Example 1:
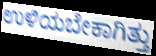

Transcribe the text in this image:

ಉಳಿಯಬೇಕಾಗಿತ್ತು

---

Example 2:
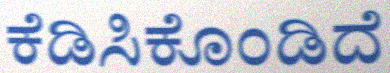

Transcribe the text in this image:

ಕೆಡಿಸಿಕೊಂಡಿದೆ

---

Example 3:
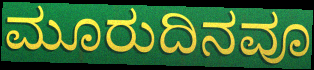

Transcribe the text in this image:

ಮೂರುದಿನವೂ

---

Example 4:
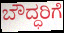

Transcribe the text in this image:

ಬೌದ್ಧರಿಗೆ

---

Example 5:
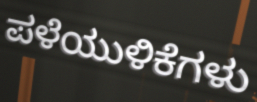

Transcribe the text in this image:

ಪಳೆಯುಳಿಕೆಗಳು